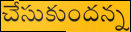
చేసుకుందన్న